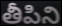
తీపిని